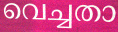
വെച്ചതാ